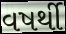
વષર્થી